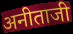
अनीताजी